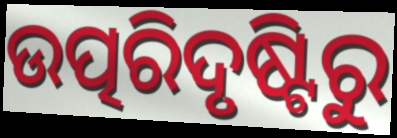
ଉତ୍ପରିଦୃଷ୍ଟିରୁ